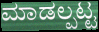
ಮಾಡಲ್ಪಟ್ಟ